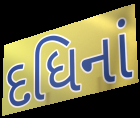
દધિનાં